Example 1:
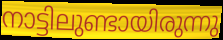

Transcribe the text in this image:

നാട്ടിലുണ്ടായിരുന്നു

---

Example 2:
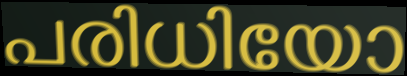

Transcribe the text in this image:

പരിധിയോ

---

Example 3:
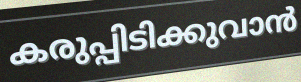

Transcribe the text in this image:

കരുപ്പിടിക്കുവാൻ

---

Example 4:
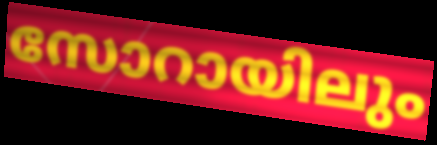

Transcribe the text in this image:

സോറായിലും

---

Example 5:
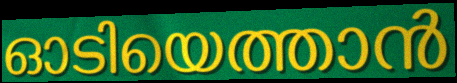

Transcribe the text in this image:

ഓടിയെത്താൻ